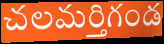
చలమర్తిగండ